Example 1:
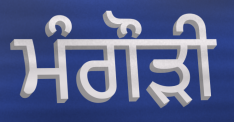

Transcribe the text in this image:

ਮੰਗੌੜੀ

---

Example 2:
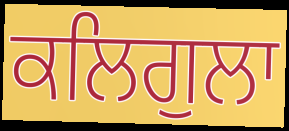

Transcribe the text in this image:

ਕਲਿਗੁਲਾ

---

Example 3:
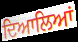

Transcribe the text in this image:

ਦਿਆਲਿਆਂ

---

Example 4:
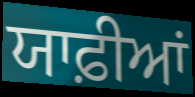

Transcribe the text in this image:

ਯਾਫ਼ੀਆਂ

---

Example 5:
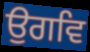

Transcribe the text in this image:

ਉਗਵਿ